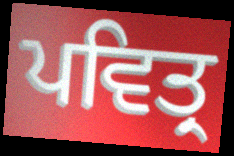
ਪਵਿਤ੍ਰ